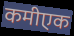
कमीएक